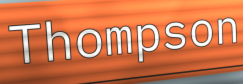
Thompson